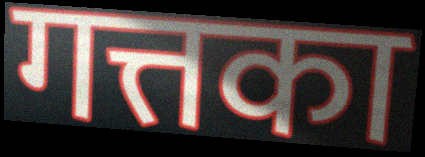
गत्तका